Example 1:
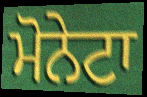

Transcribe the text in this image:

ਮੋਨੇਟਾ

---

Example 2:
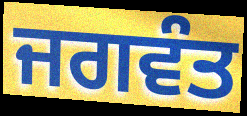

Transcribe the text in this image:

ਜਗਵੰਤ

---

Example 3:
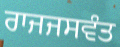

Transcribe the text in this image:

ਰਾਜਜਸਵੰਤ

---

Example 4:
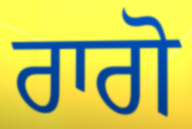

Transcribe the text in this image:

ਰਾਗੋ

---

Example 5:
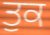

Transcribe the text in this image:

ਤੁਕ